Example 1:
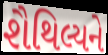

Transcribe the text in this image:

શૈથિલ્યને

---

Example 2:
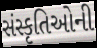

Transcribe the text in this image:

સંસ્કૃતિઓની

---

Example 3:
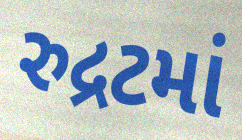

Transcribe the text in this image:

રુદ્રટમાં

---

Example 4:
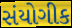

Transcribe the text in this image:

સંયોગીક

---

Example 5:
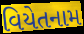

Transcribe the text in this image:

વિયેતનામ